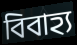
বিবাহ্য